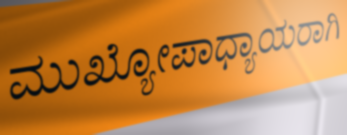
ಮುಖ್ಯೋಪಾಧ್ಯಾಯರಾಗಿ